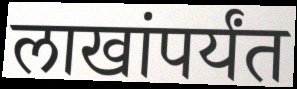
लाखांपर्यंत